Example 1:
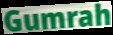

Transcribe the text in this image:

Gumrah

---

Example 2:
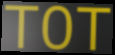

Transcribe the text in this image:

TOT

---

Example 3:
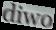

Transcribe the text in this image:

diwo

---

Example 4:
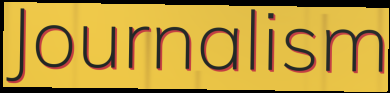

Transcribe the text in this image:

Journalism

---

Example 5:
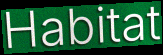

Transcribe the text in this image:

Habitat